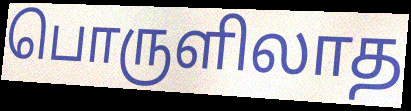
பொருளிலாத